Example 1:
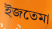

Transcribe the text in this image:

ইজতেমা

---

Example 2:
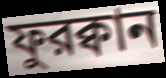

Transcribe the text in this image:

ফুরক্বান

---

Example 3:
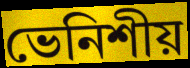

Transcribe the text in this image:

ভেনিশীয়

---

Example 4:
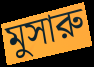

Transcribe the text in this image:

মুসারু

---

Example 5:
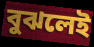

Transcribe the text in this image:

বুঝলেই